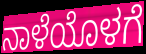
ನಾಳೆಯೊಳಗೆ